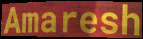
Amaresh